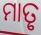
ମାତୃ